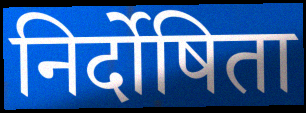
निर्दोषिता